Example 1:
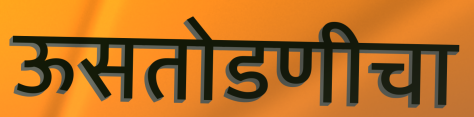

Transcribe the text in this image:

ऊसतोडणीचा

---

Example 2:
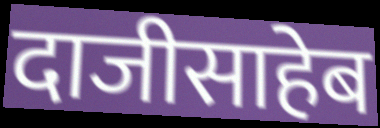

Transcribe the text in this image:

दाजीसाहेब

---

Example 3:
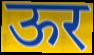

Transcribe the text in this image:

ऊर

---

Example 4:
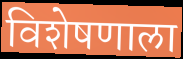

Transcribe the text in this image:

विशेषणाला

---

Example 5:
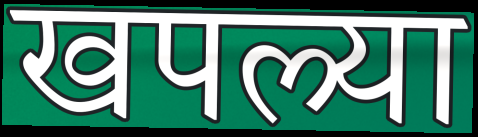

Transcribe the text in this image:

खपल्या